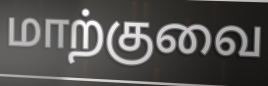
மாற்குவை